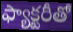
ఫ్యాక్టరీతో